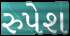
રુપેશ